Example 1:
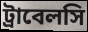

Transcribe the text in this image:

ট্রাবেলসি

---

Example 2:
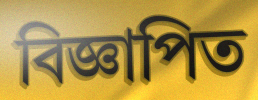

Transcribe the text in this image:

বিজ্ঞাপিত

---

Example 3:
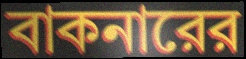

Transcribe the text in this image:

বাকনারের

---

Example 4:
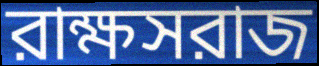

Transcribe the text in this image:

রাক্ষসরাজ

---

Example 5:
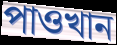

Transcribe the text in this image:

পাওখান